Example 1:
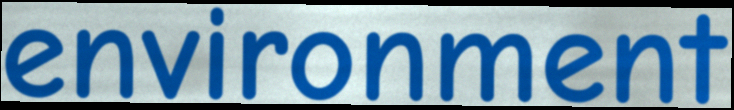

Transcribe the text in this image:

environment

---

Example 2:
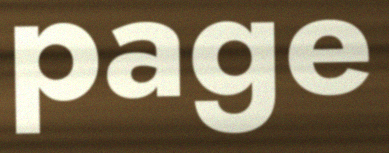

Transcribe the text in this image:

page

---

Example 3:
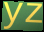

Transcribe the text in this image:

yz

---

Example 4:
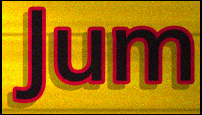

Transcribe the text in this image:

Jum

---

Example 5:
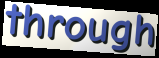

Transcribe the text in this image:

through